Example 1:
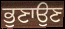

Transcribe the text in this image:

ਭੁਣਾਉਣ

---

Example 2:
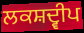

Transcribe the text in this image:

ਲਕਸ਼ਦ੍ਵੀਪ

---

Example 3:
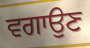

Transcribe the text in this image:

ਵਗਾਉਣ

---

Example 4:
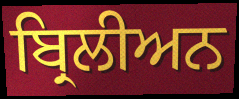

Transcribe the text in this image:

ਬ੍ਰਿਲੀਅਨ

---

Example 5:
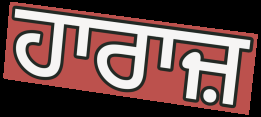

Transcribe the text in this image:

ਹਾਰਾਜ਼